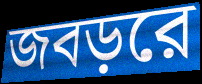
জবড়রে